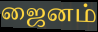
ஜைனம்